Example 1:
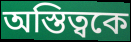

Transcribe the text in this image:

অস্তিত্বকে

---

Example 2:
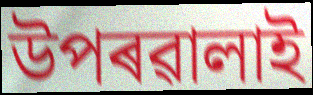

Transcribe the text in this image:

উপৰৱালাই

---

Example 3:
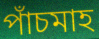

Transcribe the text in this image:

পাঁচমাহ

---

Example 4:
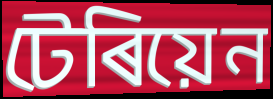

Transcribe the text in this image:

টেৰিয়েন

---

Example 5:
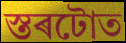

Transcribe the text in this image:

স্তৰটোত